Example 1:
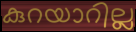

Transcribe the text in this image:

കുറയാറില്ല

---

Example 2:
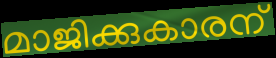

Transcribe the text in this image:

മാജിക്കുകാരന്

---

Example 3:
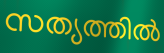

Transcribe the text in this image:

സത്യത്തിൽ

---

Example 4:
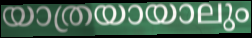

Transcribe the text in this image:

യാത്രയായാലും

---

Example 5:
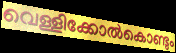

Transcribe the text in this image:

വെള്ളിക്കോൽകൊണ്ടും